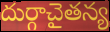
దుర్గాచైతన్య